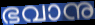
ഭവാനു